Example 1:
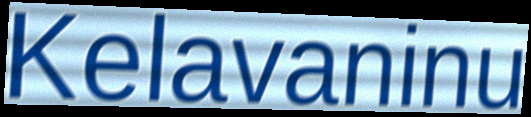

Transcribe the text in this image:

Kelavaninu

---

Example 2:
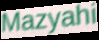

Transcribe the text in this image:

Mazyahi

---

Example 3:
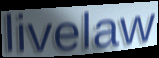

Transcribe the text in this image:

livelaw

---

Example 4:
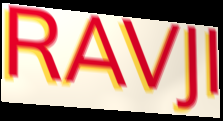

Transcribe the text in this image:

RAVJI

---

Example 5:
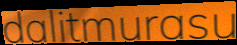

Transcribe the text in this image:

dalitmurasu